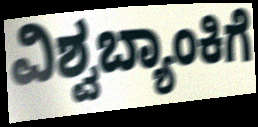
ವಿಶ್ವಬ್ಯಾಂಕಿಗೆ